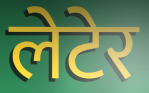
लेटेर